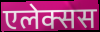
एलेक्सस